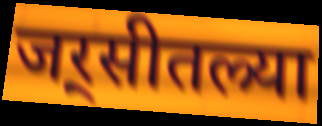
जर्सीतल्या